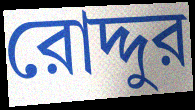
রোদ্দুর